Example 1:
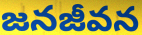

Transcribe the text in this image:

జనజీవన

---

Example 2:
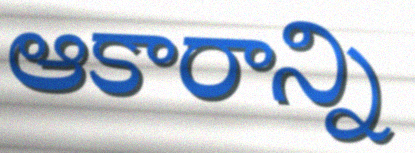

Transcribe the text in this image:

ఆకారాన్ని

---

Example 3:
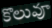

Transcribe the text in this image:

కొలువూ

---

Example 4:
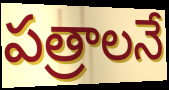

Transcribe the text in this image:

పత్రాలనే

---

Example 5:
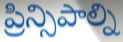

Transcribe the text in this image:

ప్రిన్సిపాల్ని